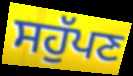
ਸਹੁੱਪਣ